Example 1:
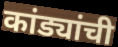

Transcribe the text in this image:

कांड्यांची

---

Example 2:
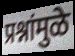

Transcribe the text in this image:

प्रश्नांमुळे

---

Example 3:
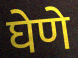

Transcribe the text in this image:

घेणे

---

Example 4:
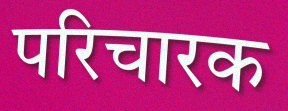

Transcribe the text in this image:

परिचारक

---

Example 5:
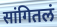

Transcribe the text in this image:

सांगितलं